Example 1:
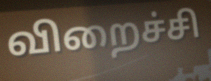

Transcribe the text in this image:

விறைச்சி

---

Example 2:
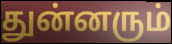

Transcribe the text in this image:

துன்னரும்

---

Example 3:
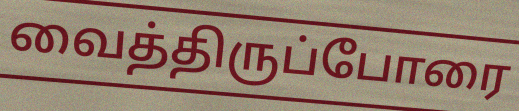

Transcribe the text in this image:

வைத்திருப்போரை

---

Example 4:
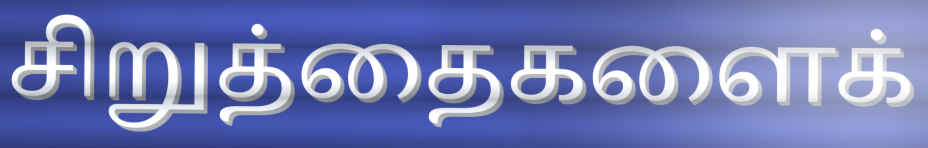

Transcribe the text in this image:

சிறுத்தைகளைக்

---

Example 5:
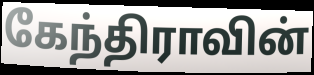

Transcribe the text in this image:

கேந்திராவின்